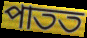
পাতত